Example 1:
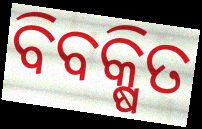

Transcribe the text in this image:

ବିବକ୍ଷିତ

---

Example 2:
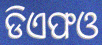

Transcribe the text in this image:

ଡିଏଫଓ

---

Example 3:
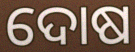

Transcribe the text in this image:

ଦୋଷ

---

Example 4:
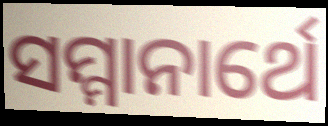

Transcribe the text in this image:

ସମ୍ମାନାର୍ଥେ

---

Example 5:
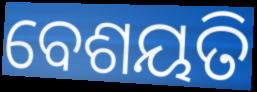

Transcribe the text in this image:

ବେଶୟତି